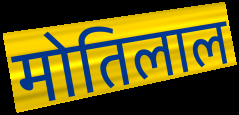
मोतिलाल